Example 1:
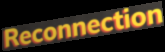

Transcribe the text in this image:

Reconnection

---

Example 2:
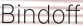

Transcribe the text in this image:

Bindoff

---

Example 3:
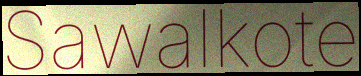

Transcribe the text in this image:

Sawalkote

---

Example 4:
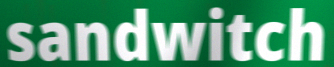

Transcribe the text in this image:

sandwitch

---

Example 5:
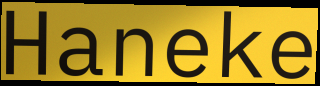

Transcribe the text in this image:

Haneke